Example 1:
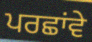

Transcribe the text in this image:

ਪਰਛਾਂਵੇ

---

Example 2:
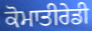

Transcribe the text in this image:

ਕੋਮਾਤੀਰੇਡੀ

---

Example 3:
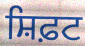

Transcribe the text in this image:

ਸ਼ਿਫ਼ਟ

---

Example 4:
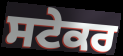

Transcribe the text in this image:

ਸਟੇਕਰ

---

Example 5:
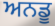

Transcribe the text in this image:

ਅਨਡੂ